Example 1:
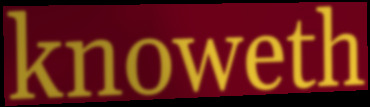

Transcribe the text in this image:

knoweth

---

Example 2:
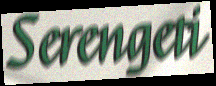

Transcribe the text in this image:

Serengeti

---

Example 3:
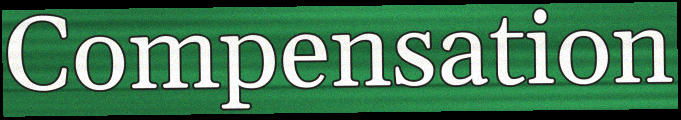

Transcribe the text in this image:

Compensation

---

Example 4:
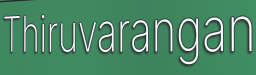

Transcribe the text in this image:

Thiruvarangan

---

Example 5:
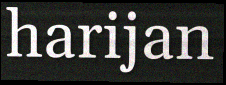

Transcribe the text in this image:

harijan